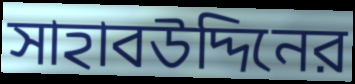
সাহাবউদ্দিনের